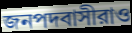
জনপদবাসীরাও